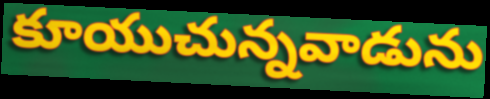
కూయుచున్నవాడును